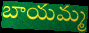
బాయమ్మ